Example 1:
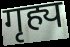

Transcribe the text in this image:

गृह्य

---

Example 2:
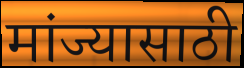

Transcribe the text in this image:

मांज्यासाठी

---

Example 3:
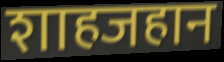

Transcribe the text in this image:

शाहजहान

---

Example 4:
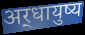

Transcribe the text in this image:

अर्धायुष्य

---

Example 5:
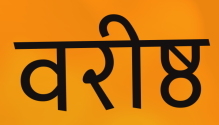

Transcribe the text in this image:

वरीष्ठ